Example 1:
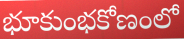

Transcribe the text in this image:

భూకుంభకోణంలో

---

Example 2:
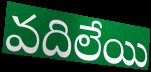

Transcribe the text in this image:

వదిలేయి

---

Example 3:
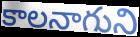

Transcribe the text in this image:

కాలనాగుని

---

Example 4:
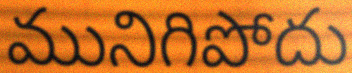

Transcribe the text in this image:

మునిగిపోదు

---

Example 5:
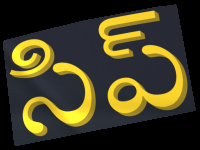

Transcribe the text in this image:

సిప్